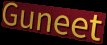
Guneet